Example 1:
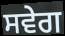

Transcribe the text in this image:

ਸਵੇਗ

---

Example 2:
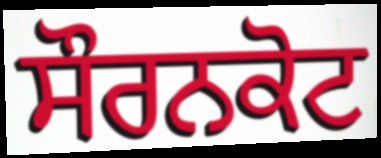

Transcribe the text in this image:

ਸੌਰਨਕੋਟ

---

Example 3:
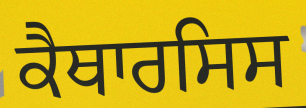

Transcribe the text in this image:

ਕੈਥਾਰਸਿਸ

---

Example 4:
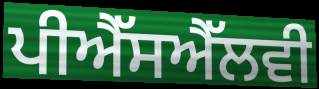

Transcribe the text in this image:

ਪੀਐੱਸਐੱਲਵੀ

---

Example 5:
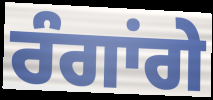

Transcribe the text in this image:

ਰੰਗਾਂਗੇ